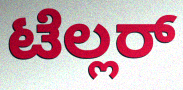
ಟೆಲ್ಲರ್